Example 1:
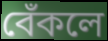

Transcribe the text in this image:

বেঁকলে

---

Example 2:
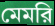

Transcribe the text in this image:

মেমরি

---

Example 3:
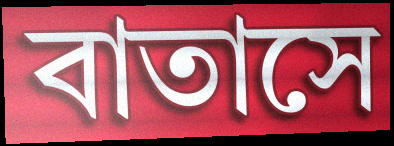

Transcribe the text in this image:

বাতাসে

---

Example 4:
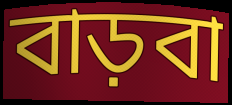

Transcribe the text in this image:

বাড়বা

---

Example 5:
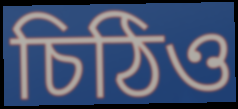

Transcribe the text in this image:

চিঠিও